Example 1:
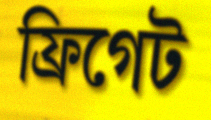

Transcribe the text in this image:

ফ্রিগেট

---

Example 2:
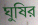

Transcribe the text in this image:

ঘুষির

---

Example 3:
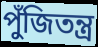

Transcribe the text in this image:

পুঁজিতন্ত্র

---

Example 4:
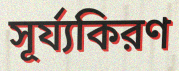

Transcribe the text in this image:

সূর্য্যকিরণ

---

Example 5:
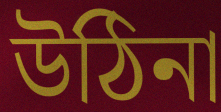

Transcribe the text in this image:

উঠিনা